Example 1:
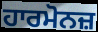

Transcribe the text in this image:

ਹਾਰਮੋਨਜ਼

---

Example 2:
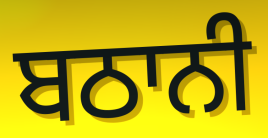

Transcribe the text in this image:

ਬਠਾਨੀ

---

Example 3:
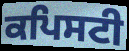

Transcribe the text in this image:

ਕਪਿਸਟੀ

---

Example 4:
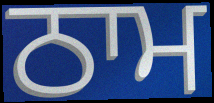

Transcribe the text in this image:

ਠਾਮ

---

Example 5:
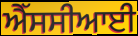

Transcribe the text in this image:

ਐੱਸਸੀਆਈ